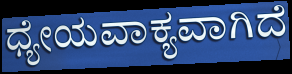
ಧ್ಯೇಯವಾಕ್ಯವಾಗಿದೆ